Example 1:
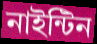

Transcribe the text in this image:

নাইন্টিন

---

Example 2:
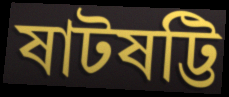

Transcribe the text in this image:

ষাটষট্টি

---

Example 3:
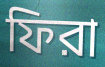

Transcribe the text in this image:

ফিরা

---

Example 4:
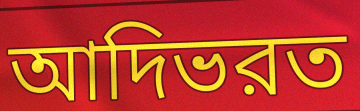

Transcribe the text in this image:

আদিভরত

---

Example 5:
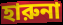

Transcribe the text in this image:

হারুনা